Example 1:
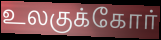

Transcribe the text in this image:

உலகுக்கோர்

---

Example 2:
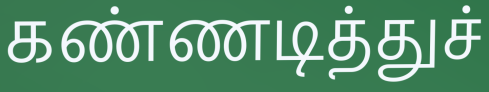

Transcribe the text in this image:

கண்ணடித்துச்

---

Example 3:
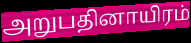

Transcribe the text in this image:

அறுபதினாயிரம்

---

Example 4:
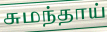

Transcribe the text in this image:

சுமந்தாய்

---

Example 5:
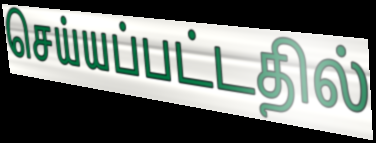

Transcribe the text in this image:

செய்யப்பட்டதில்